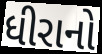
ધીરાનો